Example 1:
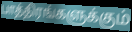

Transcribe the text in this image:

பாத்திரங்களுக்கும்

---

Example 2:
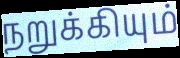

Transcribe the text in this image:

நறுக்கியும்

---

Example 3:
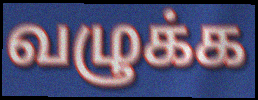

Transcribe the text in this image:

வழுக்க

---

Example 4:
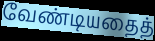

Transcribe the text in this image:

வேண்டியதைத்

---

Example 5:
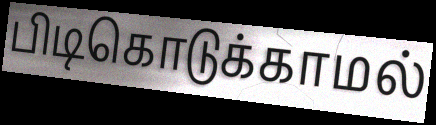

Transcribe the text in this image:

பிடிகொடுக்காமல்